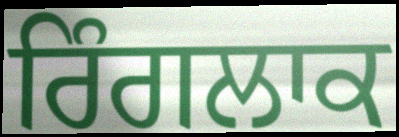
ਰਿੰਗਲਾਕ